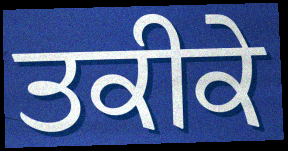
ਤਕੀਕੇ